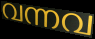
വന്നവ